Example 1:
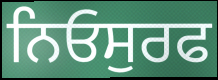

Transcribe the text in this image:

ਨਿਓਸੁਰਫ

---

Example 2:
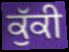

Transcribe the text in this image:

ਕੁੱਕੀ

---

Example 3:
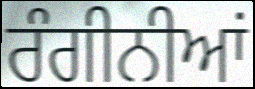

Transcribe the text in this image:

ਰੰਗੀਨੀਆਂ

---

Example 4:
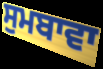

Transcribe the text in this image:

ਸੁਮਬਾਵਾ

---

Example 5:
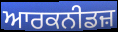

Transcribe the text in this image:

ਆਰਕਨੀਡਜ਼